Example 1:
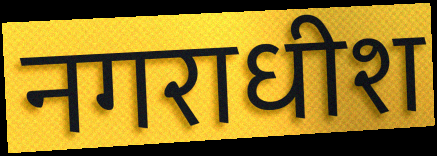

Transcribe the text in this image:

नगराधीश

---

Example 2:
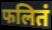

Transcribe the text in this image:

फलितं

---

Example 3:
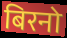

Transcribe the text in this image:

बिरनो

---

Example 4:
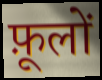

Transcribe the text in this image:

फ़ूलों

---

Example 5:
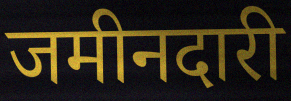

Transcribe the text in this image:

जमीनदारी